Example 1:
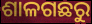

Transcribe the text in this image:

ଶାଳଗଛରୁ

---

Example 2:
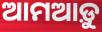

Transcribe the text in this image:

ଆମଆଡ଼ୁ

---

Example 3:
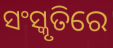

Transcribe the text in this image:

ସଂସ୍କୃତିରେ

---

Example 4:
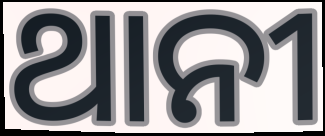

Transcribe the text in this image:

ଥାନୀ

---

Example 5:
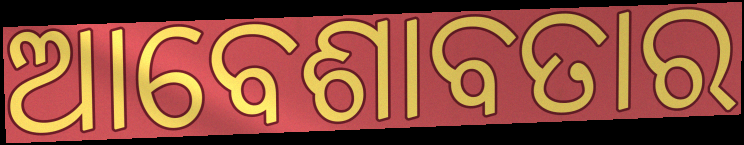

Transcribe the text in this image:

ଆବେଶାବତାର